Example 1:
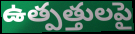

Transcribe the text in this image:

ఉత్పత్తులపై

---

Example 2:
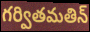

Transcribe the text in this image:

గర్వితమతిన్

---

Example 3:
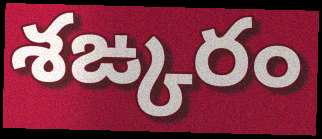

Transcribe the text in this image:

శఙ్కరం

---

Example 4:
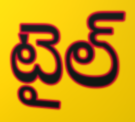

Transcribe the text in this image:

టైల్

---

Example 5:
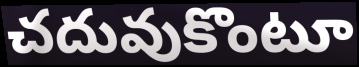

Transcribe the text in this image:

చదువుకొంటూ